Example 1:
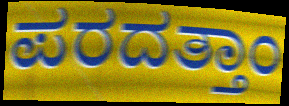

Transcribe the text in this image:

ಪರದತ್ತಾಂ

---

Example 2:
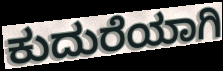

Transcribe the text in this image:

ಕುದುರೆಯಾಗಿ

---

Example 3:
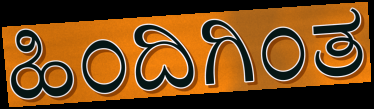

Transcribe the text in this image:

ಹಿಂದಿಗಿಂತ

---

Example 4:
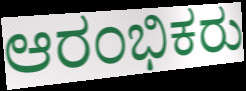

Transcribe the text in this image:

ಆರಂಭಿಕರು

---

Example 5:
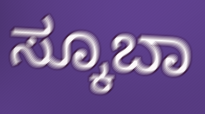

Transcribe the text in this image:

ಸ್ಕೂಬಾ